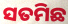
ସତମିଛ